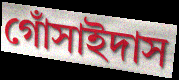
গোঁসাইদাস